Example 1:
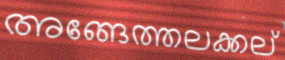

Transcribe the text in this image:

അങ്ങേത്തലക്കല്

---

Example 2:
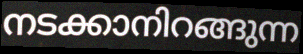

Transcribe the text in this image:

നടക്കാനിറങ്ങുന്ന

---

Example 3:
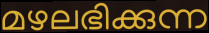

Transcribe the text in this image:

മഴലഭിക്കുന്ന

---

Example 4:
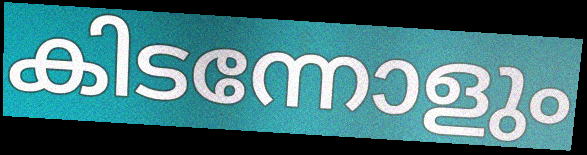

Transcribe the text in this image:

കിടന്നോളും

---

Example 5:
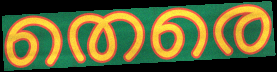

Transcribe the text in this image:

തെരെ